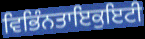
ਵਿਭਿੰਨਤਾਇਕੁਇਟੀ